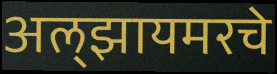
अल्झायमरचे